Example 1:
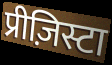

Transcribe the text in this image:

प्रीज़िस्टा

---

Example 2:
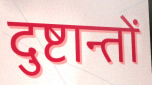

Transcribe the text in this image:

दुष्टान्तों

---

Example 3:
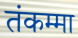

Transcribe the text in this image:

तंकम्मा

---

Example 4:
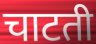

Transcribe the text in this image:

चाटती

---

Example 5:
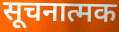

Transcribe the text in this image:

सूचनात्मक